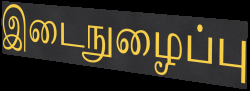
இடைநுழைப்பு